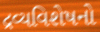
દ્રવ્યવિશેષનો